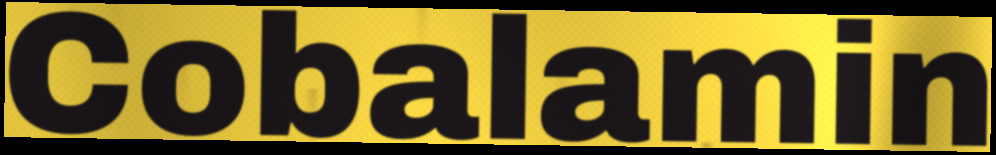
Cobalamin